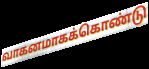
வாகனமாகக்கொண்டு